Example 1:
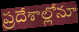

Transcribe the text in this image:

ప్రదేశాల్లోనూ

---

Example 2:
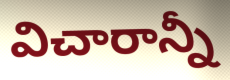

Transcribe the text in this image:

విచారాన్నీ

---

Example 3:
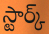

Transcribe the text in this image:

స్టార్క్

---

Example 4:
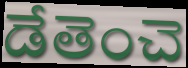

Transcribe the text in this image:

డేతెంచె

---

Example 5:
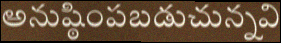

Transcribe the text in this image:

అనుష్ఠింపబడుచున్నవి